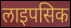
लाइपसिक